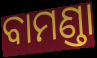
ବାମଣ୍ଡା